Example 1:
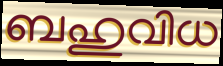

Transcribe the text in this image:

ബഹുവിധ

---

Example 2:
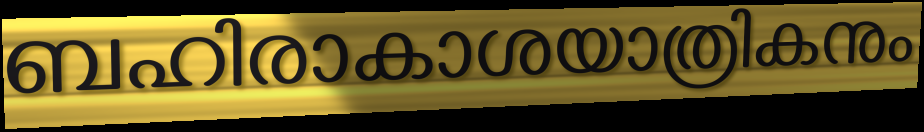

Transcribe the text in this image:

ബഹിരാകാശയാത്രികനും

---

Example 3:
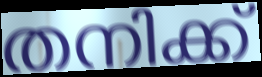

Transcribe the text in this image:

തനിക്ക്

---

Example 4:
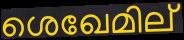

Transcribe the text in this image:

ശെഖേമില്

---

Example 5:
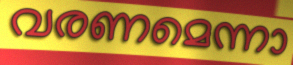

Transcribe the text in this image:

വരണമെന്നാ